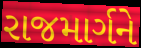
રાજમાર્ગને